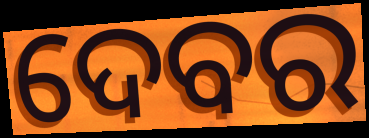
ଦେବର